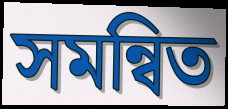
সমন্বিত